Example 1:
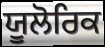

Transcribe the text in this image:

ਯੂਲੋਰਿਕ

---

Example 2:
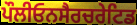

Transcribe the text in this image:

ਪੌਲੀਓਨਸੈਰਚਰੇਟਿਡ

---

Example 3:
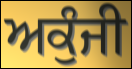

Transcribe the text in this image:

ਅਕੁੰਜੀ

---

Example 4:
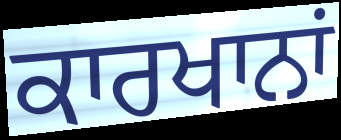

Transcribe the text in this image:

ਕਾਰਖਾਨਾਂ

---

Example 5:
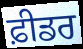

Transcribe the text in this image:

ਫ਼ੀਡਰ